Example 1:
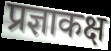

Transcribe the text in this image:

प्रज्ञाकक्ष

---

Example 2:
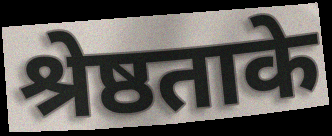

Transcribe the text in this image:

श्रेष्ठताके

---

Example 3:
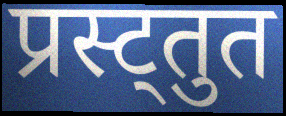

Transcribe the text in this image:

प्रस्ट्तुत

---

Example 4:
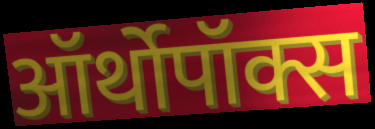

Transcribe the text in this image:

ऑर्थोपॉक्स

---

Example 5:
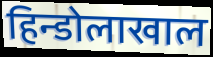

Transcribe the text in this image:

हिन्डोलाखाल